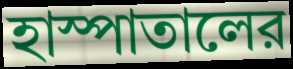
হাস্পাতালের